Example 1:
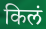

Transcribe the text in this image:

किलं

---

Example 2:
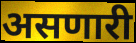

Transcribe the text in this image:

असणारी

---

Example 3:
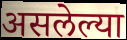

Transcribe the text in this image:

असलेल्या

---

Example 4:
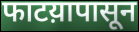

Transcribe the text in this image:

फाटय़ापासून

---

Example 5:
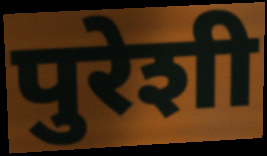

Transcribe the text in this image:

पुरेशी